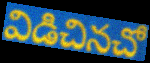
విడిచినచో